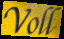
Voll